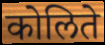
कोलिते